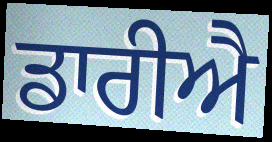
ਡਾਰੀਐ